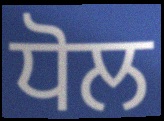
ਧੋਲ